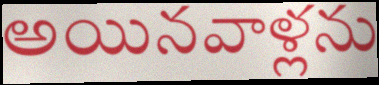
అయినవాళ్లను